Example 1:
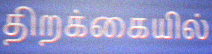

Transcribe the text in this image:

திறக்கையில்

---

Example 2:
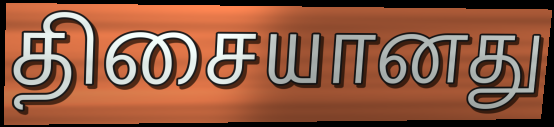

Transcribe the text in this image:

திசையானது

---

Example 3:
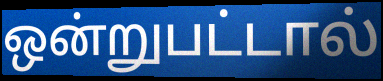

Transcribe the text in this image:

ஒன்றுபட்டால்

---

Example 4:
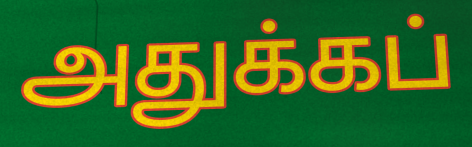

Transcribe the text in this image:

அதுக்கப்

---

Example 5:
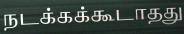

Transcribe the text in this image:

நடக்கக்கூடாதது